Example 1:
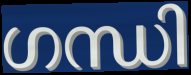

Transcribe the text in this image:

ഗന്ധി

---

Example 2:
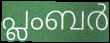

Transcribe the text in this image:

പ്ലംബർ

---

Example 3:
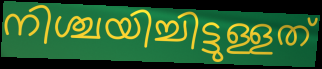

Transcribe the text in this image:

നിശ്ചയിച്ചിട്ടുള്ളത്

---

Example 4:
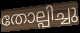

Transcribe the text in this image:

തോല്പിച്ചു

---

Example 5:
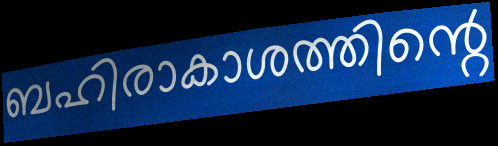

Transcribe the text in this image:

ബഹിരാകാശത്തിന്റെ